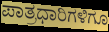
ಪಾತ್ರಧಾರಿಗಳಿಗೂ